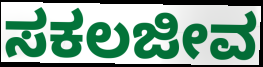
ಸಕಲಜೀವ